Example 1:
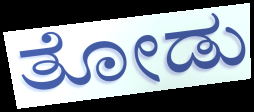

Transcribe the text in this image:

ತೋಡು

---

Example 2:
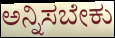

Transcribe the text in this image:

ಅನ್ನಿಸಬೇಕು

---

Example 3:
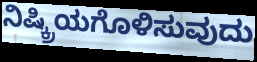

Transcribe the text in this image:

ನಿಷ್ಕ್ರಿಯಗೊಳಿಸುವುದು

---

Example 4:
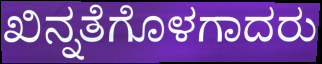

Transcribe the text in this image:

ಖಿನ್ನತೆಗೊಳಗಾದರು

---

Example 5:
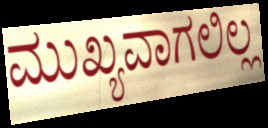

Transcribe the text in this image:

ಮುಖ್ಯವಾಗಲಿಲ್ಲ